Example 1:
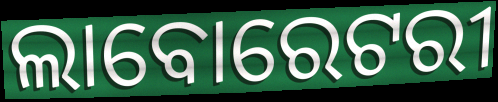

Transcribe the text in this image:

ଲାବୋରେଟରୀ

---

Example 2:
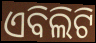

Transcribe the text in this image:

ଏବିଲିଟି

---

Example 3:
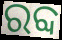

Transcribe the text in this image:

ରବ୍ଦ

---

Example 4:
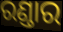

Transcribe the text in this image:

ରଣ୍ଡାର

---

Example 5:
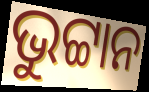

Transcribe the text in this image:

ଭୁଟ୍ଟାନ